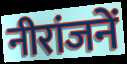
नीरांजनें